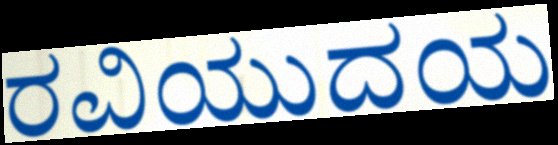
ರವಿಯುದಯ